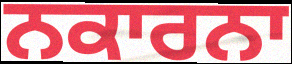
ਨਕਾਰਨਾ